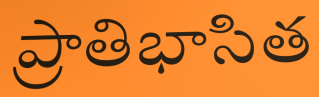
ప్రాతిభాసిత